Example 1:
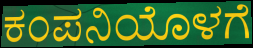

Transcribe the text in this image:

ಕಂಪನಿಯೊಳಗೆ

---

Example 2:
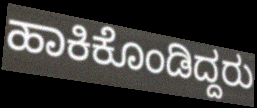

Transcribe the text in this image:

ಹಾಕಿಕೊಂಡಿದ್ದರು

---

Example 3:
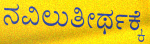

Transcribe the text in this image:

ನವಿಲುತೀರ್ಥಕ್ಕೆ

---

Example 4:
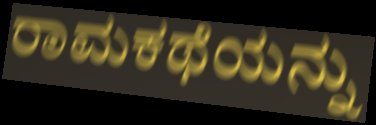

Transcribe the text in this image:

ರಾಮಕಥೆಯನ್ನು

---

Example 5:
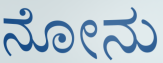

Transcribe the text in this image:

ನೋನು